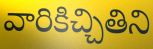
వారికిచ్చితిని